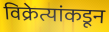
विक्रेत्यांकडून